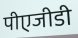
पीएजीडी